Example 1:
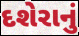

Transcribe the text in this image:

દશેરાનું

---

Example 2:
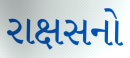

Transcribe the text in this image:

રાક્ષસનો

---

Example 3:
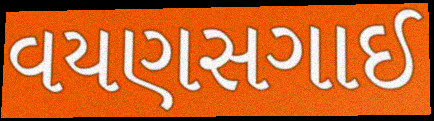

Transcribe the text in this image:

વયણસગાઈ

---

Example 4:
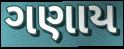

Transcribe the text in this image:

ગણાય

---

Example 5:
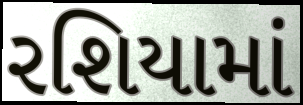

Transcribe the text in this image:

રશિયામાં